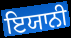
ਇਯਾਨੀ